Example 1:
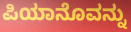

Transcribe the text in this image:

ಪಿಯಾನೊವನ್ನು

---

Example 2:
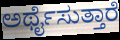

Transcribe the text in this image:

ಅರ್ಥೈಸುತ್ತಾರೆ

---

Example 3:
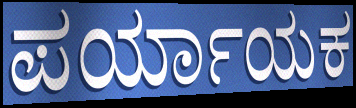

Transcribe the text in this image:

ಪರ್ಯಾಯಕ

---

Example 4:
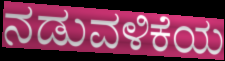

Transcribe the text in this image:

ನಡುವಳಿಕೆಯ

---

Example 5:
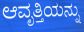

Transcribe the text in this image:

ಆವೃತ್ತಿಯನ್ನು